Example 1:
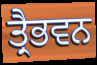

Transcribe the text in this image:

ਤ੍ਰੈਭਵਨ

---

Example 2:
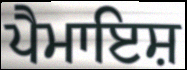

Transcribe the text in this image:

ਪੈਮਾਇਸ਼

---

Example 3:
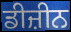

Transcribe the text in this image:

ਡੀਜ਼ੀਨ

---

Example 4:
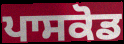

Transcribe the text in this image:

ਪਾਸਕੋਡ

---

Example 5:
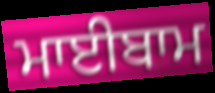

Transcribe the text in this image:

ਮਾਈਬਾਮ